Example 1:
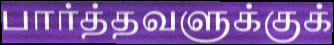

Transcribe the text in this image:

பார்த்தவளுக்குக்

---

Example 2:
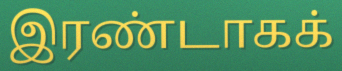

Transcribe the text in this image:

இரண்டாகக்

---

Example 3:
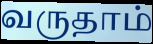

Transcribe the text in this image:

வருதாம்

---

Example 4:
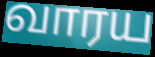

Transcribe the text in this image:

வாரய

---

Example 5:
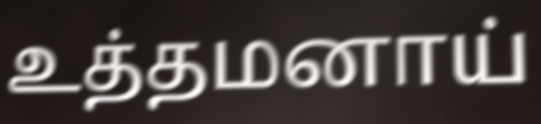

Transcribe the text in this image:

உத்தமனாய்